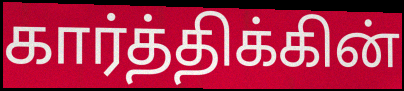
கார்த்திக்கின்